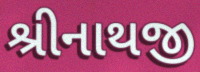
શ્રીનાથજી